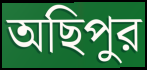
অছিপুর